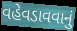
વહેવડાવવાનું